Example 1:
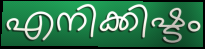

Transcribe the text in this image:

എനിക്കിഷ്ടം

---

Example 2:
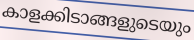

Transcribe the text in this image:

കാളക്കിടാങ്ങളുടെയും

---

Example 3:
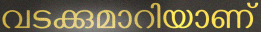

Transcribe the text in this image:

വടക്കുമാറിയാണ്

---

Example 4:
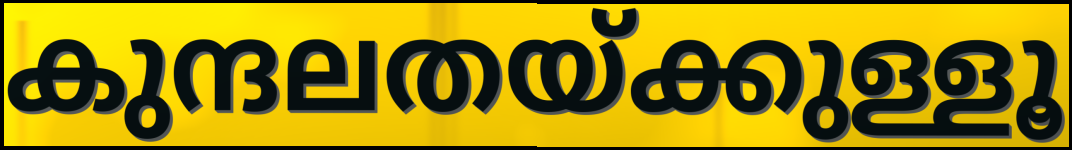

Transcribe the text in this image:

കുന്ദലതയ്ക്കുള്ളൂ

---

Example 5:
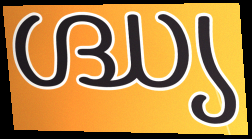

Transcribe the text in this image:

ഗ്ദ്ധ്യ